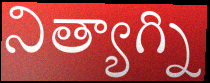
నిత్యాగ్ని